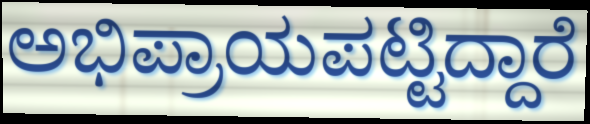
ಅಭಿಪ್ರಾಯಪಟ್ಟಿದ್ದಾರೆ